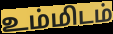
உம்மிடம்